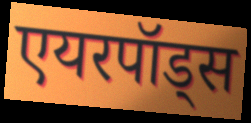
एयरपॉड्स